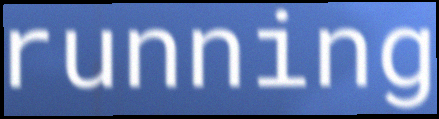
running